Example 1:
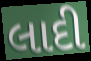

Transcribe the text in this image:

લાદી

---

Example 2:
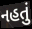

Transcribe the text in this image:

નહતું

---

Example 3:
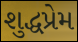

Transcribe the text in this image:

શુદ્ધપ્રેમ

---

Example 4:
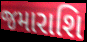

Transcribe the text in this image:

જમારાશિ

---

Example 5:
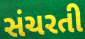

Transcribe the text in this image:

સંચરતી